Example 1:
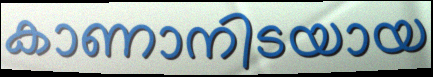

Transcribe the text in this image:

കാണാനിടയായ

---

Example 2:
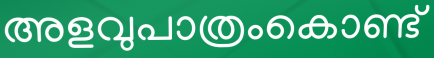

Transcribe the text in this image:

അളവുപാത്രംകൊണ്ട്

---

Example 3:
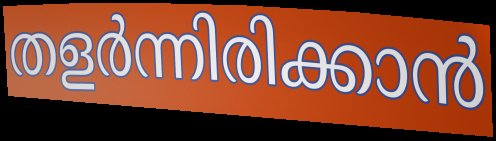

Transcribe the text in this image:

തളർന്നിരിക്കാൻ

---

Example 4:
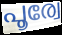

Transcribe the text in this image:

പൂര്വേ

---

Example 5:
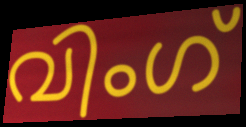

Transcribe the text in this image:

വിംഗ്